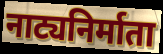
नाट्यनिर्माता